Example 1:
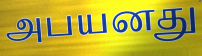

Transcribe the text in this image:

அபயனது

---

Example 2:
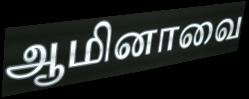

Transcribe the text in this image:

ஆமினாவை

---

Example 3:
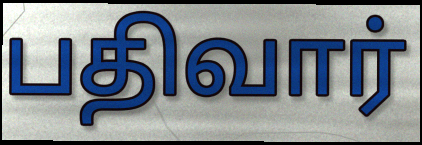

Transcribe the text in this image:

பதிவார்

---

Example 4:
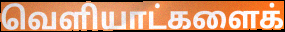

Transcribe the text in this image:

வெளியாட்களைக்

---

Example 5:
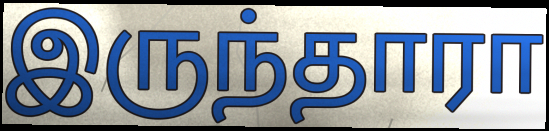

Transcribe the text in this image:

இருந்தாரா